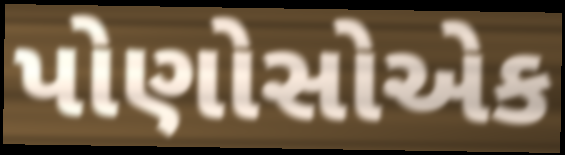
પોણોસોએક